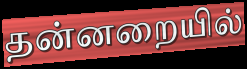
தன்னறையில்